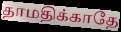
தாமதிக்காதே